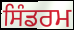
ਸਿੰਡਰਮ